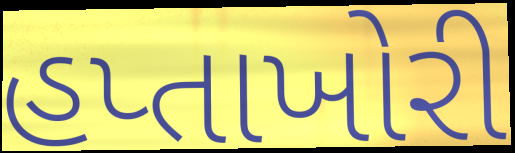
હપ્તાખોરી